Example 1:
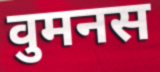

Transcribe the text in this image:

वुमनस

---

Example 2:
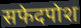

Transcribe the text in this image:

सफेदपोश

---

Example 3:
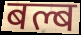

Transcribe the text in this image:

बल्‍ब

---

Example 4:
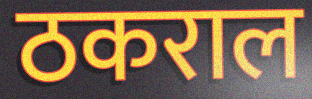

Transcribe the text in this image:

ठकराल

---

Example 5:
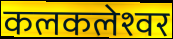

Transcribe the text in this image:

कलकलेश्वर